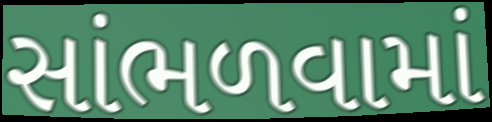
સાંભળવામાં